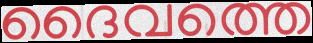
ദൈവത്തെ